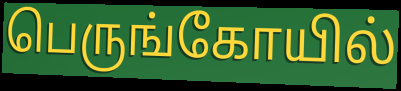
பெருங்கோயில்